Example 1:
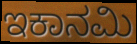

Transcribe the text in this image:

ಇಕಾನಮಿ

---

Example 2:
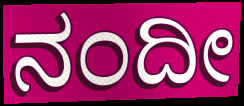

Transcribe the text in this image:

ನಂದೀ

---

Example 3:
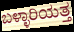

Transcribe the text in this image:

ಬಳ್ಳಾರಿಯತ್ತ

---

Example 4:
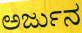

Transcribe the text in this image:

ಅರ್ಜುನ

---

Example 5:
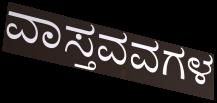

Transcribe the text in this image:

ವಾಸ್ತವವಗಳ